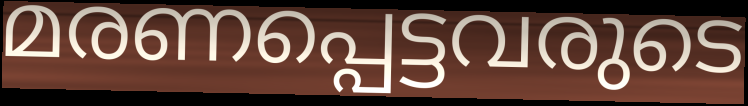
മരണപ്പെട്ടവരുടെ